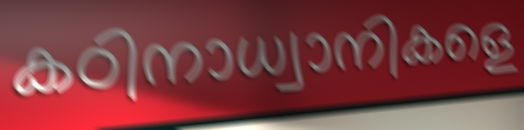
കഠിനാധ്വാനികളെ